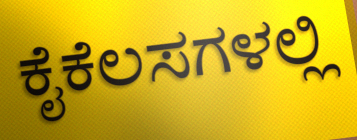
ಕೈಕೆಲಸಗಳಲ್ಲಿ